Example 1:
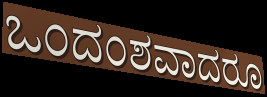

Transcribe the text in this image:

ಒಂದಂಶವಾದರೂ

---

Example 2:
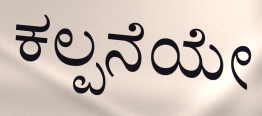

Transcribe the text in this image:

ಕಲ್ಪನೆಯೇ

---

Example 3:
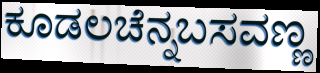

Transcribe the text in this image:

ಕೂಡಲಚೆನ್ನಬಸವಣ್ಣ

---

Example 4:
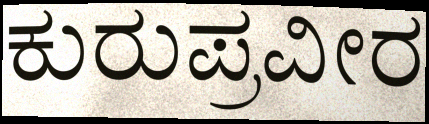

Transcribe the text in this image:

ಕುರುಪ್ರವೀರ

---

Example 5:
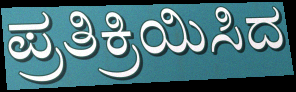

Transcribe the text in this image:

ಪ್ರತಿಕ್ರಿಯಿಸಿದ